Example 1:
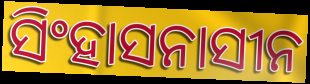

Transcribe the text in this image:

ସିଂହାସନାସୀନ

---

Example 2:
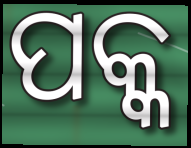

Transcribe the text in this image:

ପକ୍କ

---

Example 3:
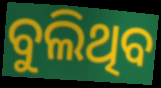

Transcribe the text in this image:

ବୁଲିଥିବ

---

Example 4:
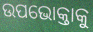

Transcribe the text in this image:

ଉପଭୋକ୍ତାକୁ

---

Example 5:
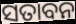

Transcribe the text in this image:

ସତାବନ